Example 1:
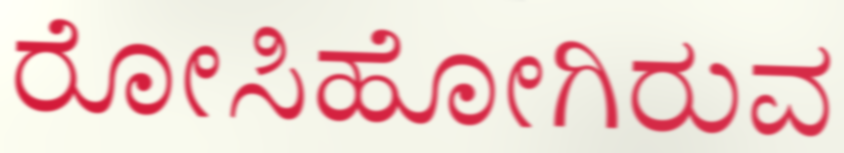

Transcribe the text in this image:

ರೋಸಿಹೋಗಿರುವ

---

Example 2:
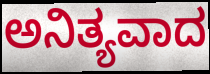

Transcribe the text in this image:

ಅನಿತ್ಯವಾದ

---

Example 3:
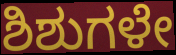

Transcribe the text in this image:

ಶಿಶುಗಳೇ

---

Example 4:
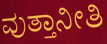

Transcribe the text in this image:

ವುತ್ತಾನೀತಿ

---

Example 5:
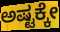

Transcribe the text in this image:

ಅಷ್ಟಕ್ಕೇ